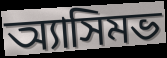
অ্যাসিমভ